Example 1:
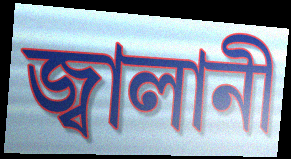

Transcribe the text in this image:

জ্বালানী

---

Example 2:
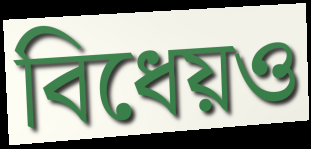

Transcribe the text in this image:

বিধেয়ও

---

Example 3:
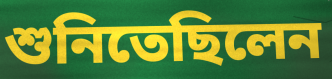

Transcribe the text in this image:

শুনিতেছিলেন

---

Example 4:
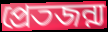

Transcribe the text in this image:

প্রেতজন্ম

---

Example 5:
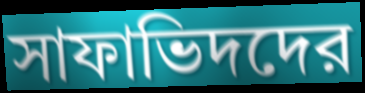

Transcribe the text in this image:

সাফাভিদদের